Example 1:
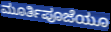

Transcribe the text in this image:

ಮೂರ್ತಿಪೂಜೆಯೂ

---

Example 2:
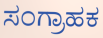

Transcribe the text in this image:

ಸಂಗ್ರಾಹಕ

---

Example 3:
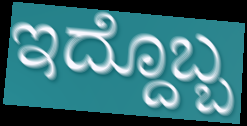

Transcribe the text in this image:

ಇದ್ದೊಬ್ಬ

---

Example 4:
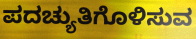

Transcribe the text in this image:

ಪದಚ್ಯುತಿಗೊಳಿಸುವ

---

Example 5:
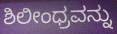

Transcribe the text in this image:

ಶಿಲೀಂಧ್ರವನ್ನು